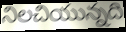
నిలచియున్నది